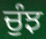
ਚੁੰਝ